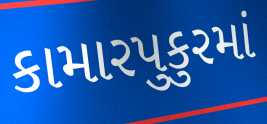
કામારપુકુરમાં